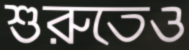
শুরুতেও